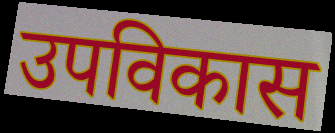
उपविकास